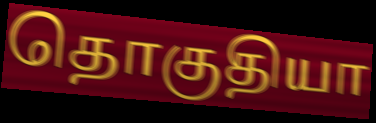
தொகுதியா